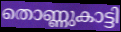
തൊണ്ണുകാട്ടി